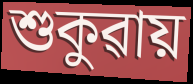
শুকুৱায়